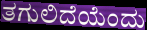
ತಗುಲಿದೆಯೆಂದು